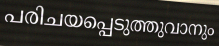
പരിചയപ്പെടുത്തുവാനും